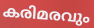
കരിമരവും